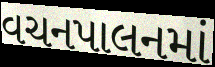
વચનપાલનમાં